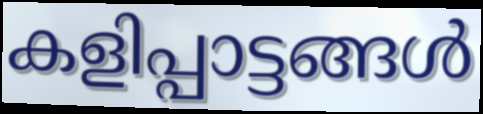
കളിപ്പാട്ടങ്ങൾ